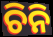
ଚିନି